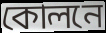
কোলনে